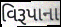
વિરૂપાના